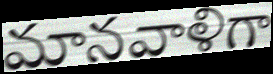
మానవాళిగా